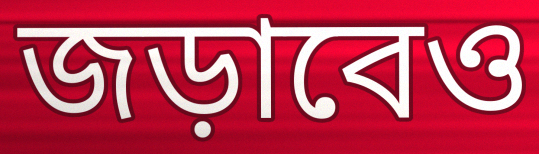
জড়াবেও